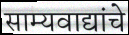
साम्यवाद्यांचे